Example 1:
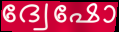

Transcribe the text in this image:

ദ്വേഷോ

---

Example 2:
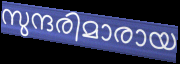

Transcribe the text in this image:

സുന്ദരിമാരായ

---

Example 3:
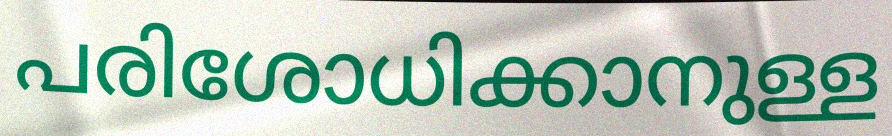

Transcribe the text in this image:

പരിശോധിക്കാനുള്ള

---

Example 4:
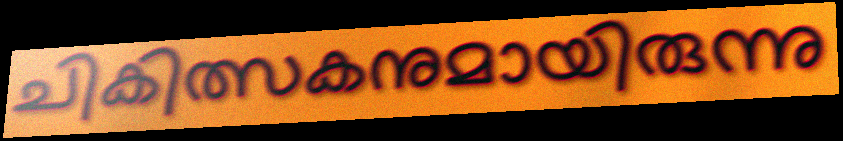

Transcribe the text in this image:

ചികിത്സകനുമായിരുന്നു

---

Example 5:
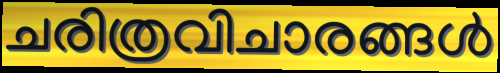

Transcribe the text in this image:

ചരിത്രവിചാരങ്ങൾ